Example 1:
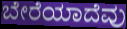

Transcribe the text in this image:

ಬೇರೆಯಾದೆವು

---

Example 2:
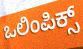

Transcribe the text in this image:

ಒಲಿಂಪಿಕ್ಸ್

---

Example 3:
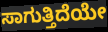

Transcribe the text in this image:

ಸಾಗುತ್ತಿದೆಯೇ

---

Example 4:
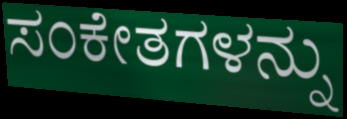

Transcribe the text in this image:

ಸಂಕೇತಗಳನ್ನು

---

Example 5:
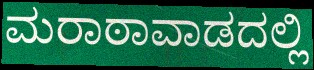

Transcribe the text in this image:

ಮರಾಠಾವಾಡದಲ್ಲಿ